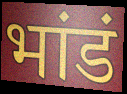
भांडं